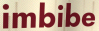
imbibe